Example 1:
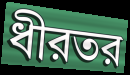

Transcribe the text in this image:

ধীরতর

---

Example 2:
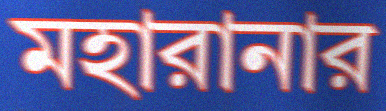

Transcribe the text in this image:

মহারানার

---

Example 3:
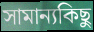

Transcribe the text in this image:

সামান্যকিছু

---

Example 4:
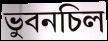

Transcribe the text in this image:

ভুবনচিল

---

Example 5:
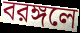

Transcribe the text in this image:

বরঙ্গলে